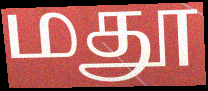
மதூ